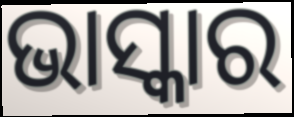
ଭାସ୍କାର